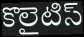
కొలైటిస్